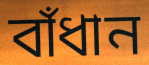
বাঁধান